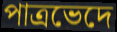
পাত্রভেদে